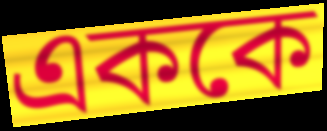
এককে